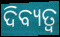
ଦିବ୍ୟତ୍ବ